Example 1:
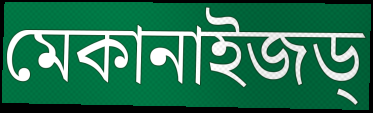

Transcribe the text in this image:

মেকানাইজড্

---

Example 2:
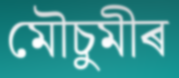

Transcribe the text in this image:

মৌচুমীৰ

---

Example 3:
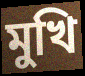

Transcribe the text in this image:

মুখি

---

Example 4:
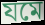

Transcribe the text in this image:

যমে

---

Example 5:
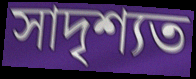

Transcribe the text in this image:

সাদৃশ্যত